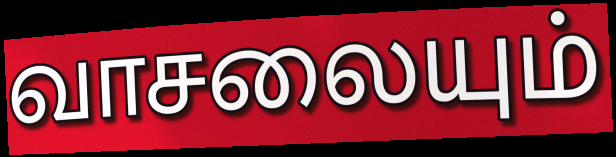
வாசலையும்